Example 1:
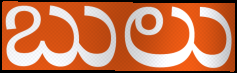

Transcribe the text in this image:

బులు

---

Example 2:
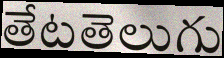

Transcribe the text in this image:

తేటతెలుగు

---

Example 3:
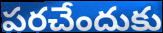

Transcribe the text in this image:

పరచేందుకు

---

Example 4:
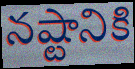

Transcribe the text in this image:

నష్టానికి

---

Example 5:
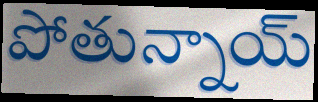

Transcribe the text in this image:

పోతున్నాయ్